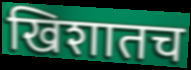
खिशातच